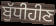
ਬੁੱਧੀਹੀਣ